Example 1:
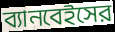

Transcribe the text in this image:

ব্যানবেইসের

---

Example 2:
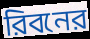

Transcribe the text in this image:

রিবনের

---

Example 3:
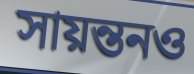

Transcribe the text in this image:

সায়ন্তনও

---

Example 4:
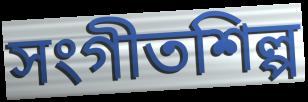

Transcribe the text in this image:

সংগীতশিল্প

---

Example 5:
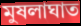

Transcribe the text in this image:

মুষলাঘাত